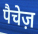
पैचेज़